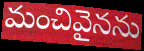
మంచివైనను